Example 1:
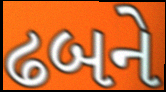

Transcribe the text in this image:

ઢબને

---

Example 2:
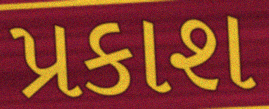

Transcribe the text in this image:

પ્રકાશ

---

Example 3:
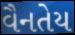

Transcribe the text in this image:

વૈનતેય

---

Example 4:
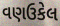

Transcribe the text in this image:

વણઉકેલ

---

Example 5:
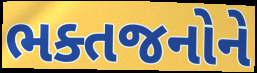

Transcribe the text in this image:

ભક્તજનોને